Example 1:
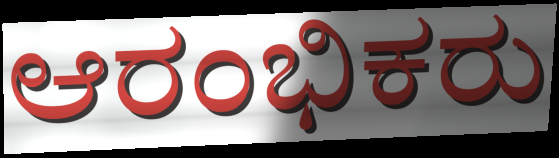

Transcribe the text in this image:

ಆರಂಭಿಕರು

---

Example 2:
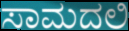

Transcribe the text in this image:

ಸಾಮದಲಿ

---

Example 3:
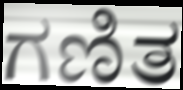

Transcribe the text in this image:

ಗಣಿತ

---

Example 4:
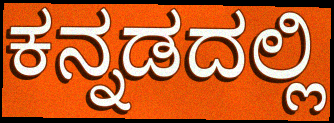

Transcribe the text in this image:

ಕನ್ನಡದಲ್ಲಿ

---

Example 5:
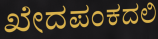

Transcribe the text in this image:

ಖೇದಪಂಕದಲಿ